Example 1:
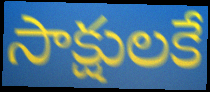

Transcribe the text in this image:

సాక్షులకే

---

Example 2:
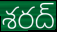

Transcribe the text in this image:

శరద్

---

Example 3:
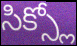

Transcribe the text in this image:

సిక్స్లో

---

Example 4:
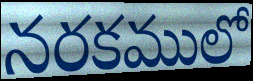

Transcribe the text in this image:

నరకములో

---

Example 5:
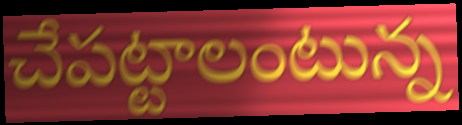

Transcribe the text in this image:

చేపట్టాలంటున్న